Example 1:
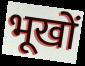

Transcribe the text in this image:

भूखों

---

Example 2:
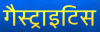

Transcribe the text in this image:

गैस्ट्राइटिस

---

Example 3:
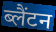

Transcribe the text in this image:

ब्लैंटन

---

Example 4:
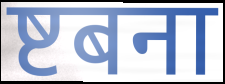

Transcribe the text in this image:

ष्टबना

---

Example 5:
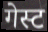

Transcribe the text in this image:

गेस्ट